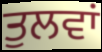
ਤੁਲਵਾਂ